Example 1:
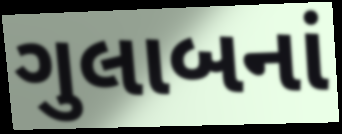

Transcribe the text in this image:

ગુલાબનાં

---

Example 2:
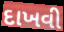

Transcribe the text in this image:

દાખવી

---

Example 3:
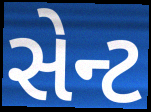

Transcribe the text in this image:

સેન્ટ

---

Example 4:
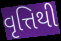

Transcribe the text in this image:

વૃત્તિથી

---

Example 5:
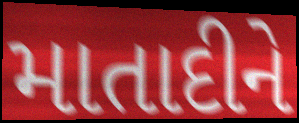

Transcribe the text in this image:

માતાદીને